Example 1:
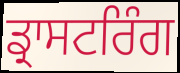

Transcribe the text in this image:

ਡ੍ਰਾਸਟਰਿੰਗ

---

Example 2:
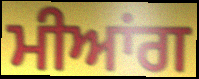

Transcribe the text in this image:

ਮੀਆਂਗ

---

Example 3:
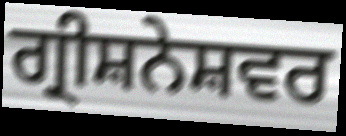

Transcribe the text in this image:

ਗ੍ਰੀਸ਼ਨੇਸ਼ਵਰ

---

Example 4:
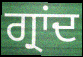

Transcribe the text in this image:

ਗ੍ਰਾਂਦ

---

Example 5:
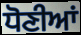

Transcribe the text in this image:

ਧੋਣੀਆਂ